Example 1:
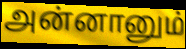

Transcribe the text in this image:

அன்னானும்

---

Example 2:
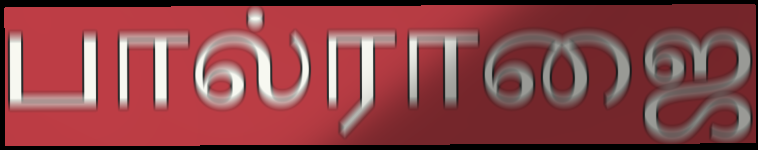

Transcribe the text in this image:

பால்ராஜை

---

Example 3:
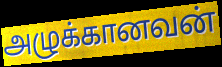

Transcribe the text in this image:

அழுக்கானவன்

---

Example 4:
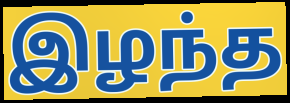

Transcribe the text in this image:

இழந்த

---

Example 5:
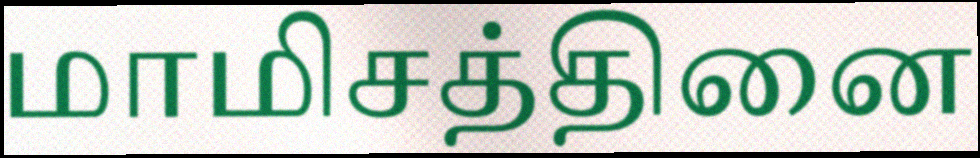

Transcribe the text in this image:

மாமிசத்தினை